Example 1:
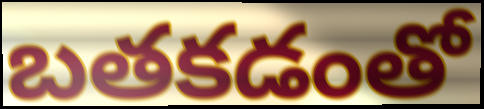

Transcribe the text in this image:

బతకడంతో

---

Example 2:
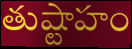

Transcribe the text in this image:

తుష్టాహం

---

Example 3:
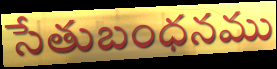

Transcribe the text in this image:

సేతుబంధనము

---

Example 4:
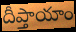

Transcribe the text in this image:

దీప్తాయాం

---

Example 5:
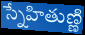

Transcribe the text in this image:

స్నేహితుణ్ణి